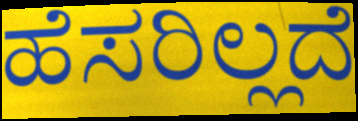
ಹೆಸರಿಲ್ಲದೆ